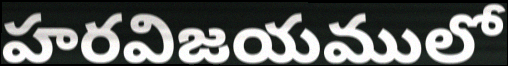
హరవిజయములో